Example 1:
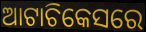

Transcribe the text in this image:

ଆଟାଚିକେସରେ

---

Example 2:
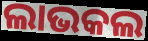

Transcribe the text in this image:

ଲାଭକଲ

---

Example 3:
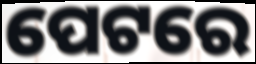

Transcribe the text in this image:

ପେଟରେ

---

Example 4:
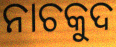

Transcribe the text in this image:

ନାଚକୁଦ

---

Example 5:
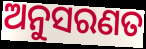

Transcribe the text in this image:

ଅନୁସରଣତ